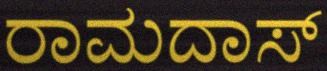
ರಾಮದಾಸ್